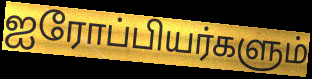
ஐரோப்பியர்களும்